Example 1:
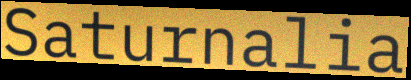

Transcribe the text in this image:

Saturnalia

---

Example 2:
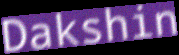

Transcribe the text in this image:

Dakshin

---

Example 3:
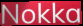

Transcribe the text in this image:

Nokka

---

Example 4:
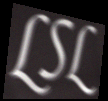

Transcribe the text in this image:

LSL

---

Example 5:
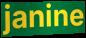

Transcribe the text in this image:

janine